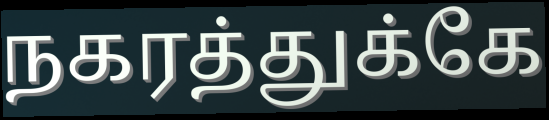
நகரத்துக்கே